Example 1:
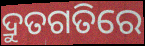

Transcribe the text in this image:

ଦ୍ରୁତଗତିରେ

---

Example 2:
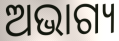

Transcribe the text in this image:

ଅଭାଗ୍ୟ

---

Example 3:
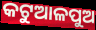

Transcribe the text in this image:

କଟୁଆଳପୁଅ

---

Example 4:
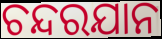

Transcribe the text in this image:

ଚନ୍ଦରଯାନ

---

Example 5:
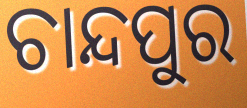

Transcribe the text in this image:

ଚାନ୍ଦପୁର